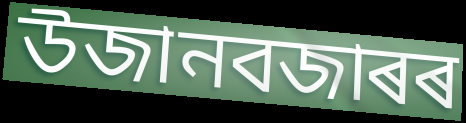
উজানবজাৰৰ